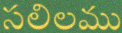
సలిలము